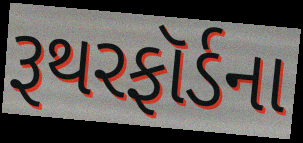
રૂથરફૉર્ડના